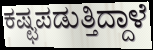
ಕಷ್ಟಪಡುತ್ತಿದ್ದಾಳೆ